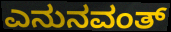
ಎನುನವಂತ್